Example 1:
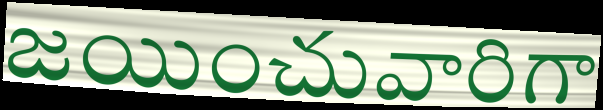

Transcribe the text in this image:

జయించువారిగా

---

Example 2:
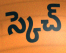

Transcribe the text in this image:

స్కెచ్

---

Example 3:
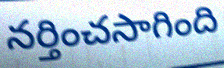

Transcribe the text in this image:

నర్తించసాగింది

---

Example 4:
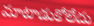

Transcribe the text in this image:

మాటాడుకోలేదు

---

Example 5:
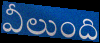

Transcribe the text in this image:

వీలుంది